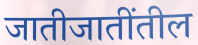
जातीजातींतील